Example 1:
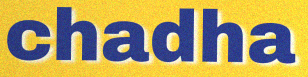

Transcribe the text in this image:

chadha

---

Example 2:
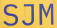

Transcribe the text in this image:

SJM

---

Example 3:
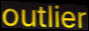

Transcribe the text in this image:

outlier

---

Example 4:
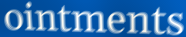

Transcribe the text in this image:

ointments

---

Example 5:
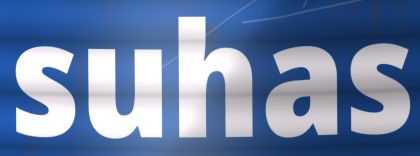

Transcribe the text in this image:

suhas